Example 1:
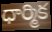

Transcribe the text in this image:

ధార్మిక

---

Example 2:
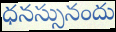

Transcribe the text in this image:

ధనస్సునందు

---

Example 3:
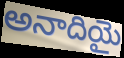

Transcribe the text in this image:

అనాదియై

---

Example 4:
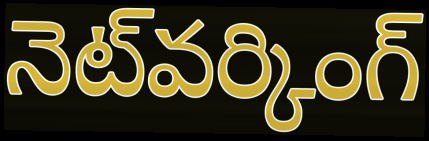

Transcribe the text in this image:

నెట్‌వర్కింగ్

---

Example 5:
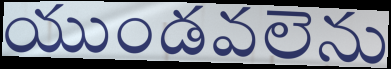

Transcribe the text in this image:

యుండవలెను